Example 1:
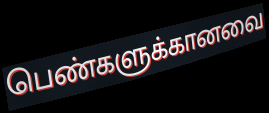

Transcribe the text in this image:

பெண்களுக்கானவை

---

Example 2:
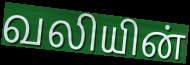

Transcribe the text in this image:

வலியின்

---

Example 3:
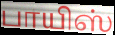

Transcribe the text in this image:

பாயிஸ்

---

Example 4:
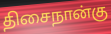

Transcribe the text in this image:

திசைநான்கு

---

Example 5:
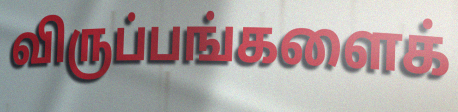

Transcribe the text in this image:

விருப்பங்களைக்